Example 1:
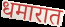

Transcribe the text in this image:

धमारात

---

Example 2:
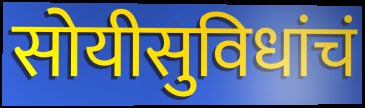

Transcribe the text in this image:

सोयीसुविधांचं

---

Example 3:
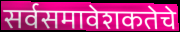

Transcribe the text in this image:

सर्वसमावेशकतेचे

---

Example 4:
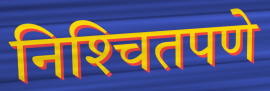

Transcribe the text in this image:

निश्‍चितपणे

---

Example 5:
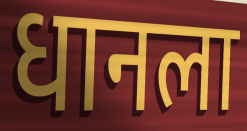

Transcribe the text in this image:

धानला